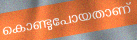
കൊണ്ടുപോയതാണ്